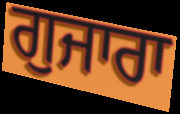
ਗੁਜਾਰਾ